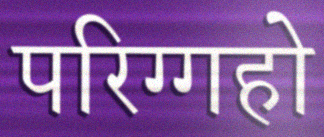
परिग्गहो